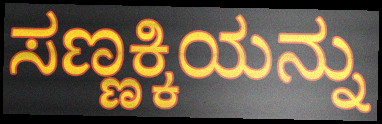
ಸಣ್ಣಕ್ಕಿಯನ್ನು